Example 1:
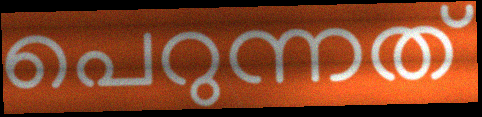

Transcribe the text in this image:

പെറുന്നത്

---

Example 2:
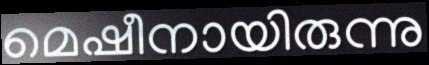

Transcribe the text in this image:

മെഷീനായിരുന്നു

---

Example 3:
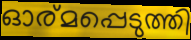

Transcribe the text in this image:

ഓര്മപ്പെടുത്തി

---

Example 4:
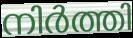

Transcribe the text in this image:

നിർത്തി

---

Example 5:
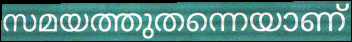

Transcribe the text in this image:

സമയത്തുതന്നെയാണ്